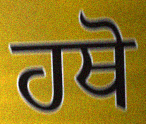
ਹਥੋ